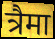
त्रैमा